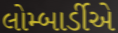
લોમ્બાર્ડીએ